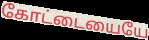
கோட்டையையே